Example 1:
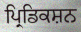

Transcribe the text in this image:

ਪ੍ਰਿਡਿਕਸ਼ਨ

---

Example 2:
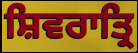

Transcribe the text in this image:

ਸ਼ਿਵਰਾਤ੍ਰਿ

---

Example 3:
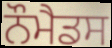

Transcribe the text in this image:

ਨੌਮੈਡਸ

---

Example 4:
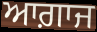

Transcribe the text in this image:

ਆਗ਼ਾਜ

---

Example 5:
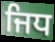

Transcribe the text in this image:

ਜਿਧ